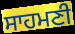
ਸਾਹਮਣੀ